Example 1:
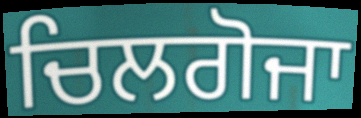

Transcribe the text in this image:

ਚਿਲਗੋਜਾ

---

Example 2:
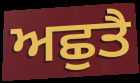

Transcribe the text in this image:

ਅਛੁਤੈ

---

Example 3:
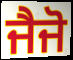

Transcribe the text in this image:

ਜੈਜੋ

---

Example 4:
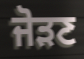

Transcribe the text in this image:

ਜੋੜਣ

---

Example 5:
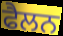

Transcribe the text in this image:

ਫੈਲਨ